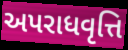
અપરાધવૃત્તિ